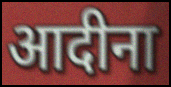
आदीना